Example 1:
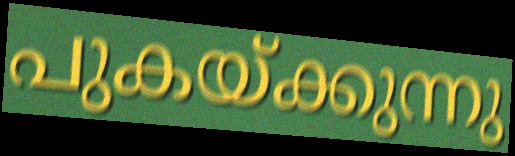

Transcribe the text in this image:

പുകയ്ക്കുന്നു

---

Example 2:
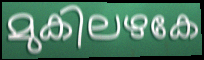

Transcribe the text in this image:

മുകിലഴകേ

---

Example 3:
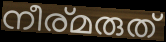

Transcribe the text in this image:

നീര്മരുത്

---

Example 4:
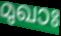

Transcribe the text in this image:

മുഖാഃ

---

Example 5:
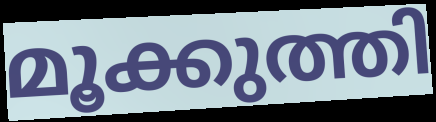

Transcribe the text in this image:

മൂക്കുത്തി